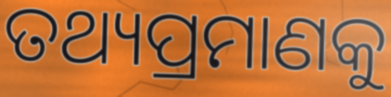
ତଥ୍ୟପ୍ରମାଣକୁ